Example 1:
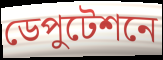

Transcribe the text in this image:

ডেপুটেশনে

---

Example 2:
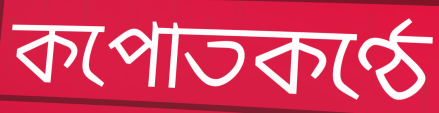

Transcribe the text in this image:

কপোতকণ্ঠে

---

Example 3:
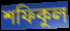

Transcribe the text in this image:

শফিকুল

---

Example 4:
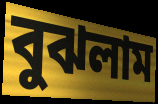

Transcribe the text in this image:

বুঝলাম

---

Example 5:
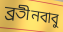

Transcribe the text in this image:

ব্রতীনবাবু